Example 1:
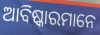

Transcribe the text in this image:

ଆବିଷ୍କାରମାନେ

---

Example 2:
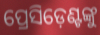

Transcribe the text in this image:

ପ୍ରେସିଡ଼େଣ୍ଟଙ୍କୁ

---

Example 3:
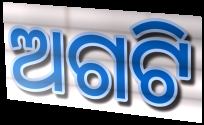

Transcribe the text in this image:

ଅଗଟି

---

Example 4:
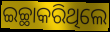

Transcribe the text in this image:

ଇଚ୍ଛାକରିଥିଲେ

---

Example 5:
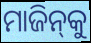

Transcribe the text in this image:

ମାଜିନ୍‌କୁ